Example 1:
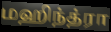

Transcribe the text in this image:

மஹிந்த்ரா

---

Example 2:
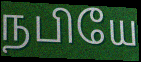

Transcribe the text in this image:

நபியே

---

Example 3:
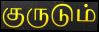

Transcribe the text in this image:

குருடும்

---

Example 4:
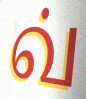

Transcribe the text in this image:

வ்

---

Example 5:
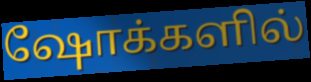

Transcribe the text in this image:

ஷோக்களில்